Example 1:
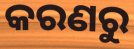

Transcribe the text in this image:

କରଣରୁ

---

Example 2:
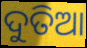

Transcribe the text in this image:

ଦୁତିଆ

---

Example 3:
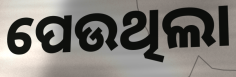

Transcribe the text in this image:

ପେଉଥିଲା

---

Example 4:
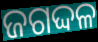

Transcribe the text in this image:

ଜଗଦ୍ଦଳ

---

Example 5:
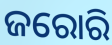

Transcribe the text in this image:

ଜରୋରି